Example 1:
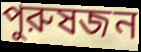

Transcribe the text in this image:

পুৰুষজন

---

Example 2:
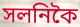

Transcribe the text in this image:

সলনিকৈ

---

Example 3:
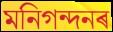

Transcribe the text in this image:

মনিগন্দনৰ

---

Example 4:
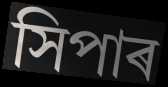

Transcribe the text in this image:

সিপাৰ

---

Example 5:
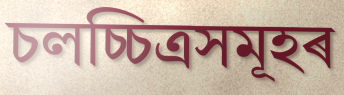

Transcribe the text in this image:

চলচ্চিত্ৰসমূহৰ